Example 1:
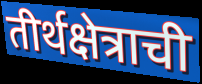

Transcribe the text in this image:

तीर्थक्षेत्राची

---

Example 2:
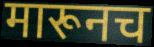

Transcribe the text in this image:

मारूनच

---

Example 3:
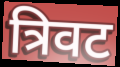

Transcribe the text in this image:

त्रिवट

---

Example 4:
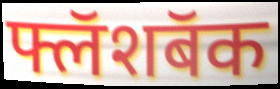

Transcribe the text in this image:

फ्लॅशबॅक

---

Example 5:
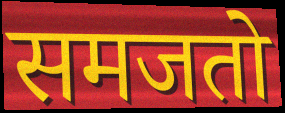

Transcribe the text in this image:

समजतो